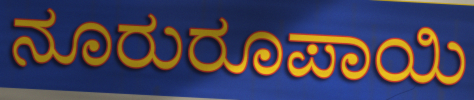
ನೂರುರೂಪಾಯಿ